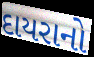
દાયરાનો